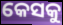
କେସକୁ